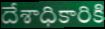
దేశాధికారికి